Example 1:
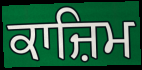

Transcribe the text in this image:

ਕਾਜ਼ਿਮ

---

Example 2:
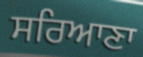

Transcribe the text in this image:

ਸਰਿਆਣਾ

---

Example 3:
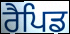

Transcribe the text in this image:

ਰੈਪਿਡ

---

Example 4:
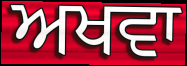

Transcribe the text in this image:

ਅਖਵਾ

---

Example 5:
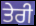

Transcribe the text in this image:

ਤੇਰੀ